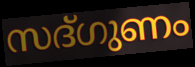
സദ്ഗുണം